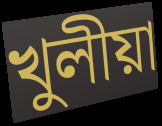
খুলীয়া